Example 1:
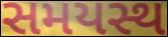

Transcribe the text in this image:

સમયસ્થ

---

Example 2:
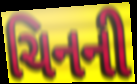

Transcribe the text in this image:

ચિનની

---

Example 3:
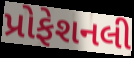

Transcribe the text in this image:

પ્રોફેશનલી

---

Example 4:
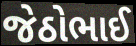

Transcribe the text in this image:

જેઠોભાઈ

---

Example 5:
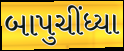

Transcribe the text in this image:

બાપુચીંધ્યા